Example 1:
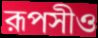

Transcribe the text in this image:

রূপসীও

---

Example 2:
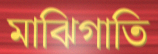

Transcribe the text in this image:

মাঝিগাতি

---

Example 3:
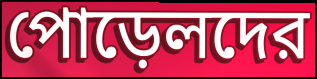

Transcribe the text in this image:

পোড়েলদের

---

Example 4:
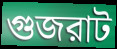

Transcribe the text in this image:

গুজরাট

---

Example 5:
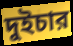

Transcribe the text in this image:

দুইচার